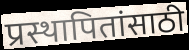
प्रस्थापितांसाठी